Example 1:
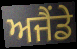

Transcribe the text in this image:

ਅਜੈਂਡੇ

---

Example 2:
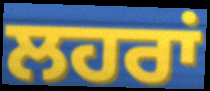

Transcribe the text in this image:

ਲਹਰਾਂ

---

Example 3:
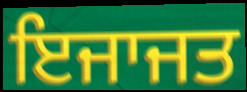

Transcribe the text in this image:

ਇਜਾਜਤ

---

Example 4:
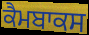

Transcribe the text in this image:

ਕੈਮਬਾਕਸ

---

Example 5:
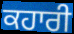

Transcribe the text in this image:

ਕਹਾਰੀ